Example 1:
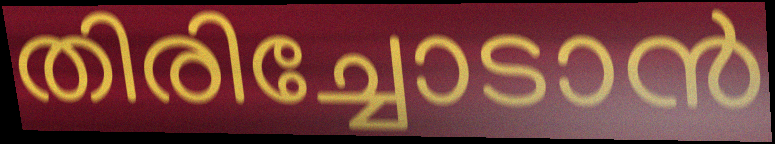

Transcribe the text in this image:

തിരിച്ചോടാൻ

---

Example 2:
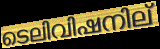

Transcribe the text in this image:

ടെലിവിഷനില്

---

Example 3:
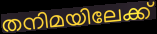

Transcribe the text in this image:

തനിമയിലേക്ക്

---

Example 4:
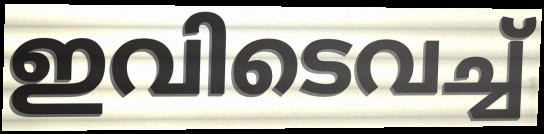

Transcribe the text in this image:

ഇവിടെവച്ച്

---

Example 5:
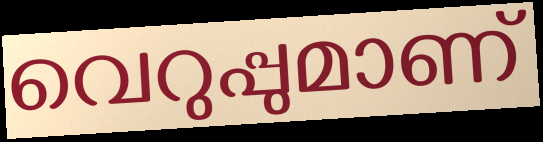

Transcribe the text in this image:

വെറുപ്പുമാണ്